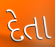
દેતા